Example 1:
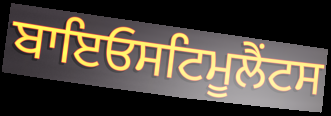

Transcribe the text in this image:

ਬਾਇਓਸਟਿਮੂਲੈਂਟਸ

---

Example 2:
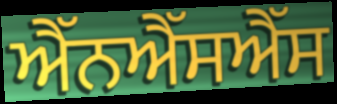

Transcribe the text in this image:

ਐੱਨਐੱਸਐੱਸ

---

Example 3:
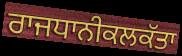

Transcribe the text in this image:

ਰਾਜਧਾਨੀਕਲਕੱਤਾ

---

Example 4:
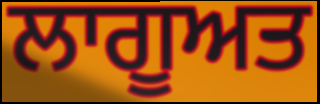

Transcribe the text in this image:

ਲਾਗੂਅਤ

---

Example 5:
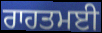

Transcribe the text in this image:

ਰਾਹਤਮਈ